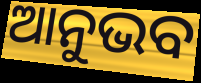
ଆନୁଭବ